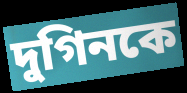
দুগিনকে